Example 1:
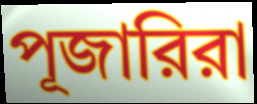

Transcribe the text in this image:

পূজারিরা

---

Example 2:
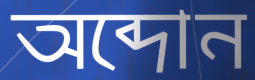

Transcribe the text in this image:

অব্দোন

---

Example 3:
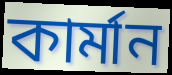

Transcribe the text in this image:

কার্মান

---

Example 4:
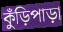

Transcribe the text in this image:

কুঁড়িপাড়া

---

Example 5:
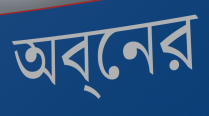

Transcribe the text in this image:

অব্নের